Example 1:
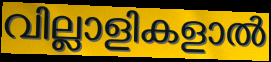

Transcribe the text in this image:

വില്ലാളികളാൽ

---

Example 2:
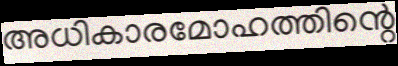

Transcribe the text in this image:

അധികാരമോഹത്തിന്റെ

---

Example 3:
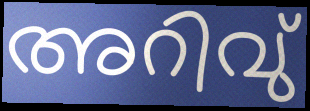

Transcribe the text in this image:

അറിവു്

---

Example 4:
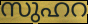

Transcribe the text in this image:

സുഹറ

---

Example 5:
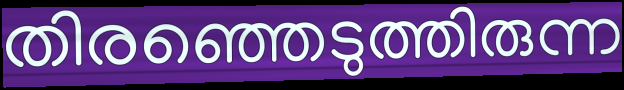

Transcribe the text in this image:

തിരഞ്ഞെടുത്തിരുന്ന